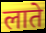
लाते